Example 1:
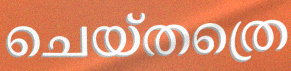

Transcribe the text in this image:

ചെയ്തത്രെ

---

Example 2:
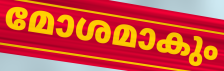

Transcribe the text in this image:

മോശമാകും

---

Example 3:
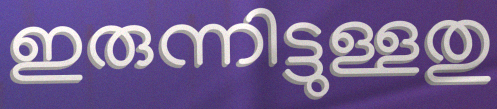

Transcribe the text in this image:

ഇരുന്നിട്ടുള്ളതു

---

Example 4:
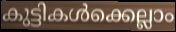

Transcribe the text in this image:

കുട്ടികൾക്കെല്ലാം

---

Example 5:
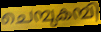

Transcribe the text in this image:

ചെമ്പുകമ്പി